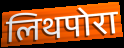
लिथपोरा